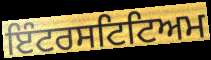
ਇੰਟਰਸਟਿਟਿਅਮ